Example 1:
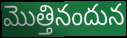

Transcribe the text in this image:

మొత్తినందున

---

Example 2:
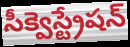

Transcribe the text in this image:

సీక్వెస్ట్రేషన్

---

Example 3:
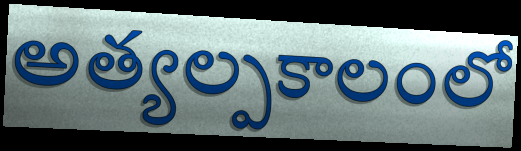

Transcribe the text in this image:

అత్యల్పకాలంలో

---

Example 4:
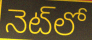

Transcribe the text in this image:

నెట్‌లో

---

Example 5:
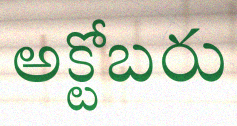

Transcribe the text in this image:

అక్టోబరు